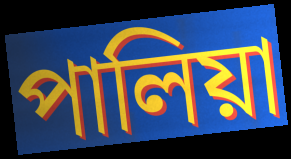
পালিয়া